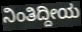
ನಿಂತಿದ್ದೀಯ